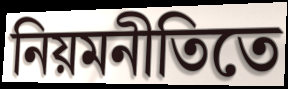
নিয়মনীতিতে